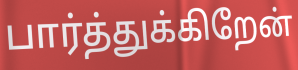
பார்த்துக்கிறேன்